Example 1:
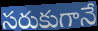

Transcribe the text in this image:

సరుకుగానే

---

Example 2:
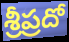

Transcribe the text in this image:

శ్రీప్రదో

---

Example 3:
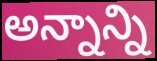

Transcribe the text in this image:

అన్నాన్ని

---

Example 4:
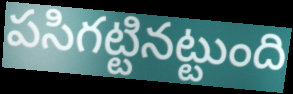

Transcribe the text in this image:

పసిగట్టినట్టుంది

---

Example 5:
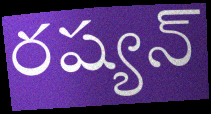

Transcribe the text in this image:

రష్యన్